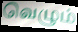
வெழும்